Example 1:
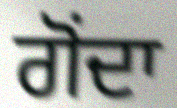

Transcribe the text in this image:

ਗੋਂਦਾ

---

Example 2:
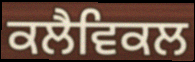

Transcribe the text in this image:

ਕਲੈਵਿਕਲ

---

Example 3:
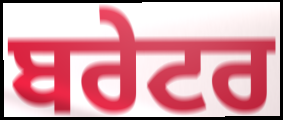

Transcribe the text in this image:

ਬਰੇਟਰ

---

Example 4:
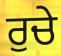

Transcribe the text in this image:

ਰੁਚੇ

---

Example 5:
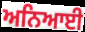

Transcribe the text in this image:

ਅਨਿਆਈ